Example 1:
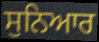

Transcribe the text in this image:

ਸੁਨਿਆਰ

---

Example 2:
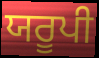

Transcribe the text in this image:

ਯਰੂਪੀ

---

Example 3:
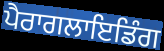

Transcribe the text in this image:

ਪੈਰਾਗਲਾਇਡਿੰਗ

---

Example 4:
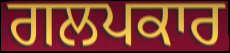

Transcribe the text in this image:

ਗਲਪਕਾਰ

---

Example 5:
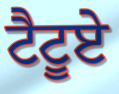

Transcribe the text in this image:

ਟੈਟੂਏ